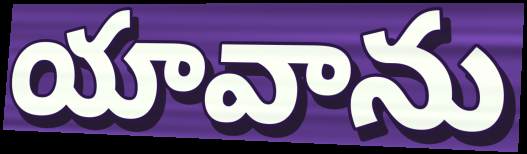
యావాను